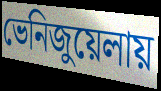
ভেনিজুয়েলায়